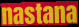
nastana